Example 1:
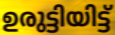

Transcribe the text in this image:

ഉരുട്ടിയിട്ട്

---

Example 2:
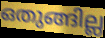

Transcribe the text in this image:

ഒതുങ്ങില്ല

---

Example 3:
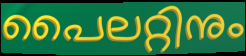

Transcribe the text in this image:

പൈലറ്റിനും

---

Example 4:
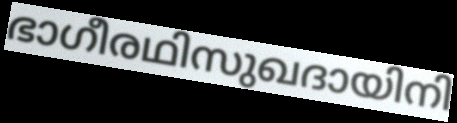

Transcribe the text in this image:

ഭാഗീരഥിസുഖദായിനി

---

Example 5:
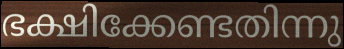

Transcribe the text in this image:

ഭക്ഷിക്കേണ്ടതിന്നു